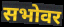
सभोवर